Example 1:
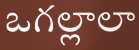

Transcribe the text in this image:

ఒగల్లాలా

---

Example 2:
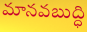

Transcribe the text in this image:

మానవబుద్ధి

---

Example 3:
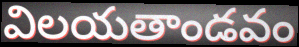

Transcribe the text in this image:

విలయతాండవం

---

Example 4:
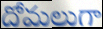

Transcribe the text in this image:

దోమలుగా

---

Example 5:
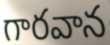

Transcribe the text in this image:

గారవాన